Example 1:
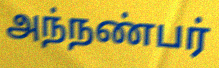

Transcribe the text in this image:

அந்நண்பர்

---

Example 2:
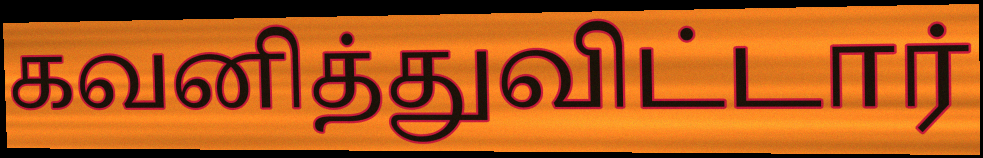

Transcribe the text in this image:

கவனித்துவிட்டார்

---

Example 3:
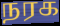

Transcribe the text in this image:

நரக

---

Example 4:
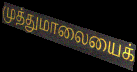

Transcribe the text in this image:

முத்துமாலையைக்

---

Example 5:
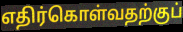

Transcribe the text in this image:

எதிர்கொள்வதற்குப்